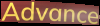
Advance